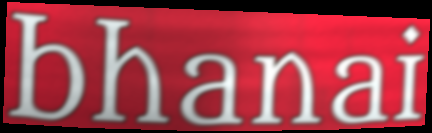
bhanai